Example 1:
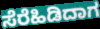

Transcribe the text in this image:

ಸೆರೆಹಿಡಿದಾಗ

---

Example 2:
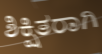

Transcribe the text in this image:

ಶಿಕ್ಷಿತರಾಗಿ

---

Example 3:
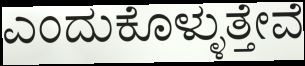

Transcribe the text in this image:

ಎಂದುಕೊಳ್ಳುತ್ತೇವೆ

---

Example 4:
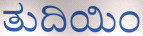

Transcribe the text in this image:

ತುದಿಯಿಂ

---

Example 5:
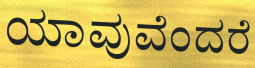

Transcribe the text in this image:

ಯಾವುವೆಂದರೆ